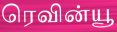
ரெவின்யூ